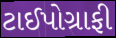
ટાઈપોગ્રાફી